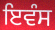
ਇਵੰਸ